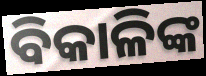
ବିକାଳିଙ୍କ